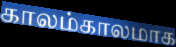
காலம்காலமாக